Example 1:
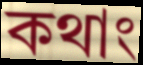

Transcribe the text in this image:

কথাং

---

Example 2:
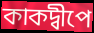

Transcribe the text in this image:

কাকদ্বীপে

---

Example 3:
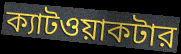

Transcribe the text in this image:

ক্যাটওয়াকটার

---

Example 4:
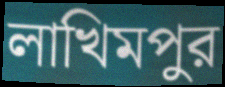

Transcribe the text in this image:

লাখিমপুর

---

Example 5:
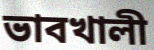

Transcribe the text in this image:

ভাবখালী